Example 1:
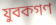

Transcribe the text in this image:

যুবকগণ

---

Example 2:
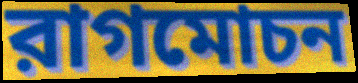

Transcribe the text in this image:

রাগমোচন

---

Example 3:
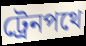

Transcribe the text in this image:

ট্রেনপথে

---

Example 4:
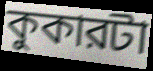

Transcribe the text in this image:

কুকারটা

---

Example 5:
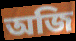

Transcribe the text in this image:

অজি